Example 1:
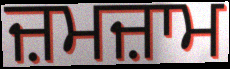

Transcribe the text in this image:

ਜ਼ਮਜ਼ਾਮ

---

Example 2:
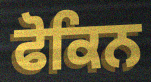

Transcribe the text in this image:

ਫੋਕਿਨ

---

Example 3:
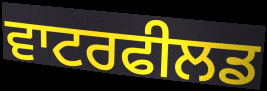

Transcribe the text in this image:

ਵਾਟਰਫੀਲਡ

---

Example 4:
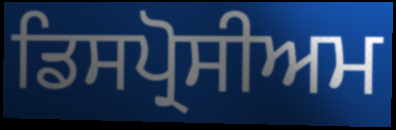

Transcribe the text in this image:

ਡਿਸਪ੍ਰੋਸੀਅਮ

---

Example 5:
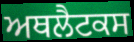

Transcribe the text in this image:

ਅਥਲੈਟਕਸ